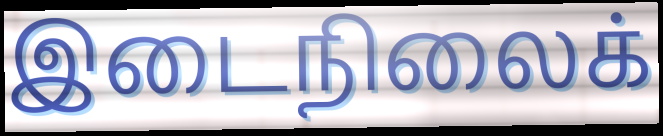
இடைநிலைக்